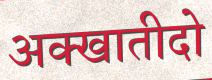
अक्खातीदो